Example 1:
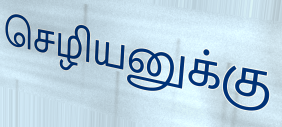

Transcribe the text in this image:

செழியனுக்கு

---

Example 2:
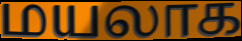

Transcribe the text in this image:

மயலாக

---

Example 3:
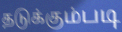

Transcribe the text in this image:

தடுக்கும்படி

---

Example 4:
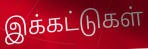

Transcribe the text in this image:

இக்கட்டுகள்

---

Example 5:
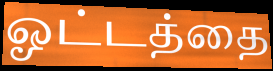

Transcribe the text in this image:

ஓட்டத்தை